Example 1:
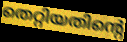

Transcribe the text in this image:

തെറ്റിയതിന്റെ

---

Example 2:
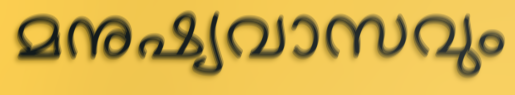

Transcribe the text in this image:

മനുഷ്യവാസവും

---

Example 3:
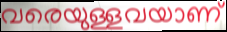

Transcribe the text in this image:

വരെയുള്ളവയാണ്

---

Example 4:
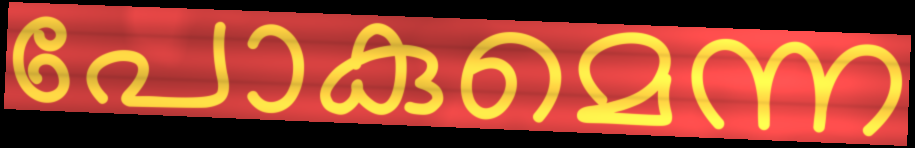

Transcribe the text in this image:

പോകുമെന്ന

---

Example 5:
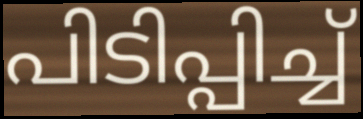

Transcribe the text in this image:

പിടിപ്പിച്ച്